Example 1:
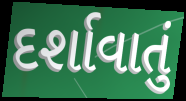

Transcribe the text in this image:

દર્શાવાતું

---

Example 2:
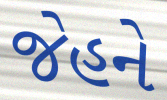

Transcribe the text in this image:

જેહને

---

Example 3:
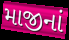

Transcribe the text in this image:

માજીનાં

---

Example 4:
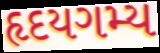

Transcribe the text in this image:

હૃદયગમ્ય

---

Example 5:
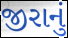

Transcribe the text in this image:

જીરાનું